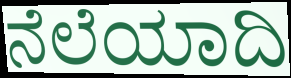
ನೆಲೆಯಾದಿ